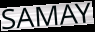
SAMAY